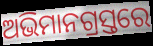
ଅଭିମାନଗ୍ରସ୍ତରେ